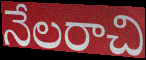
నేలరాచి